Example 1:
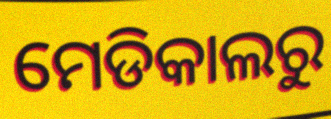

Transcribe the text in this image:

ମେଡିକାଲରୁ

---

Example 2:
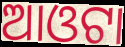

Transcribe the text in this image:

ଆଓଟା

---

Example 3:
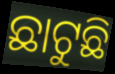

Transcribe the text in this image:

ଛାଟୁଛି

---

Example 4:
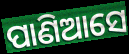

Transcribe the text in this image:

ପାଣିଆସେ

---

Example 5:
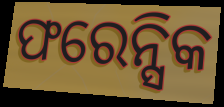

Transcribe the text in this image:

ଫରେନ୍ସିକ